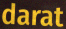
darat